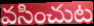
వసించుట